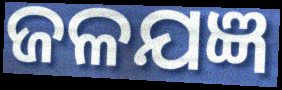
ଜଳଯଜ୍ଞ